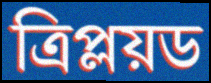
ত্রিপ্লয়ড